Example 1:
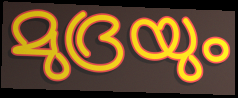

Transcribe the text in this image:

മുദ്രയും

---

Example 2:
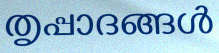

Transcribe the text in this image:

തൃപ്പാദങ്ങൾ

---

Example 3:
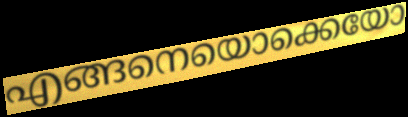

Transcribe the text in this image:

എങ്ങനെയൊക്കെയോ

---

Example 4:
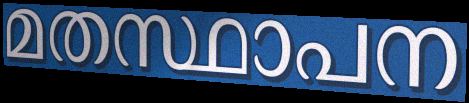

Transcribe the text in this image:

മതസ്ഥാപന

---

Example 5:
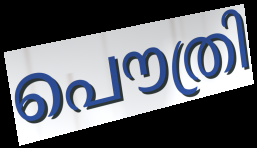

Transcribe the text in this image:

പൌത്രി